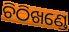
ଚିଠିଖଣ୍ଡେ